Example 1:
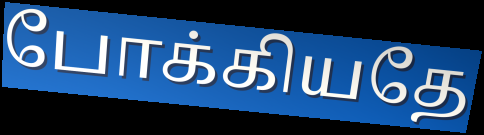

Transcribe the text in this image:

போக்கியதே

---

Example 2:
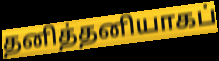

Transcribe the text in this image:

தனித்தனியாகப்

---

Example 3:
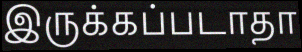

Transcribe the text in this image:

இருக்கப்படாதா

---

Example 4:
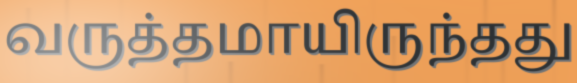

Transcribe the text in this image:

வருத்தமாயிருந்தது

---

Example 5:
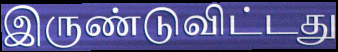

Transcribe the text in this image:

இருண்டுவிட்டது